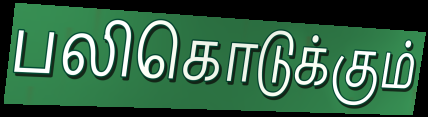
பலிகொடுக்கும்